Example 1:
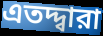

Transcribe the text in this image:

এতদ্দ্বারা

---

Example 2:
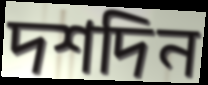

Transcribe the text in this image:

দশদিন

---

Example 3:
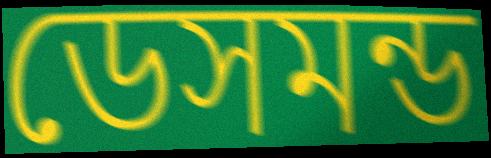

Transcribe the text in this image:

ডেসমন্ড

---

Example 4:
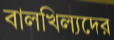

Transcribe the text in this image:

বালখিল্যদের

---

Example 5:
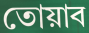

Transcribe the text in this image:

তোয়াব